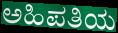
ಅಹಿಪತಿಯ